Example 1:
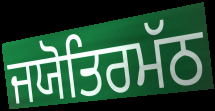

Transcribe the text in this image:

ਜਯੋਤਿਰਮੱਠ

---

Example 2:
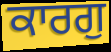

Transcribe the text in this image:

ਕਾਰਗੁ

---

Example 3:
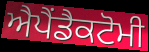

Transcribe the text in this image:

ਐਪੈਂਡੈਕਟੋਮੀ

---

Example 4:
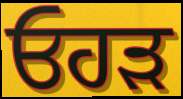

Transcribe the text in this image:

ਓਹੜ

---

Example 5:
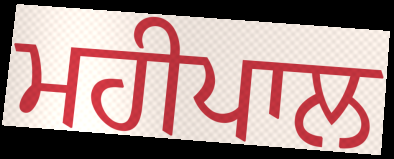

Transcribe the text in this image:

ਮਹੀਪਾਲ